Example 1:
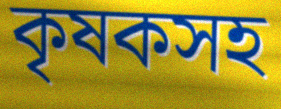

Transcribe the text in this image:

কৃষকসহ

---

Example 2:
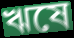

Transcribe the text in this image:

ঋষে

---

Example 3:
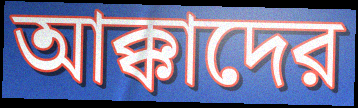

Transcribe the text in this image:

আক্কাদের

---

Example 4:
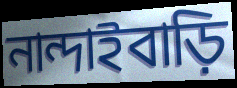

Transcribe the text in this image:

নান্দাইবাড়ি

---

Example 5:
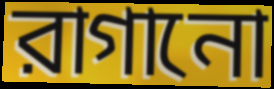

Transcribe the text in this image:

রাগানো